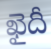
ఖైదీ